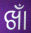
ଖାଁ